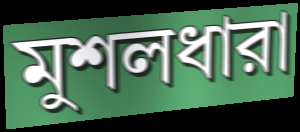
মুশলধারা